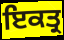
ਇਕਤ੍ਰ